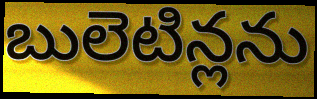
బులెటిన్లను